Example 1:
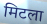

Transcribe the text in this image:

मिटला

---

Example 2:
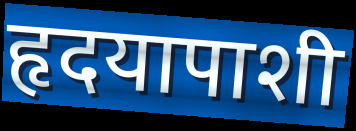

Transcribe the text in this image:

हृदयापाशी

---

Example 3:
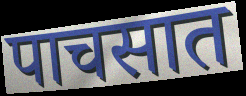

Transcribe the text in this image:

पाचसात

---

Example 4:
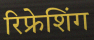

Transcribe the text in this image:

रिफ्रेशिंग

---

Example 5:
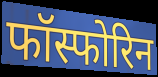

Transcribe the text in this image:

फॉस्फोरिन